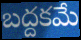
బద్దకమే